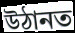
উঠানত